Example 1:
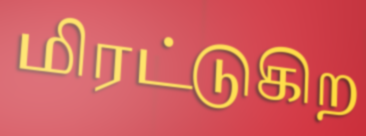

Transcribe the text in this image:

மிரட்டுகிற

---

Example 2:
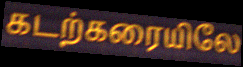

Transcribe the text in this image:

கடற்கரையிலே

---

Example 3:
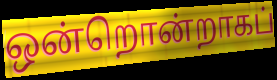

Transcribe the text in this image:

ஒன்றொன்றாகப்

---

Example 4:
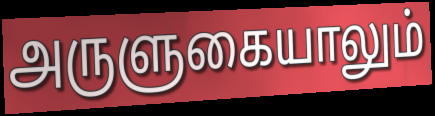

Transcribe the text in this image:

அருளுகையாலும்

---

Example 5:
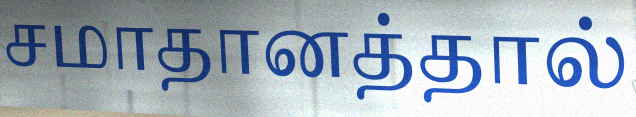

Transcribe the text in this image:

சமாதானத்தால்